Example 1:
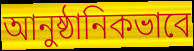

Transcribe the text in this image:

আনুষ্ঠানিকভাবে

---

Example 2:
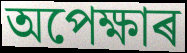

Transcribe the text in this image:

অপেক্ষাৰ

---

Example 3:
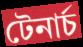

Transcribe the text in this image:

টেনাৰ্চ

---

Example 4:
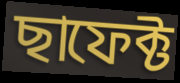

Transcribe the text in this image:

ছাফেক্ট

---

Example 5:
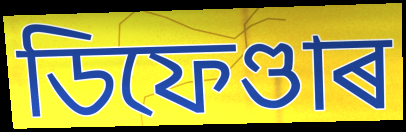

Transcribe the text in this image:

ডিফেণ্ডাৰ